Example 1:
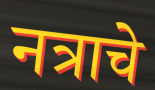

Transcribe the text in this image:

नत्राचे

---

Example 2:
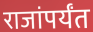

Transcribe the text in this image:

राजांपर्यंत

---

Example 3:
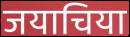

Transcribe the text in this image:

जयाचिया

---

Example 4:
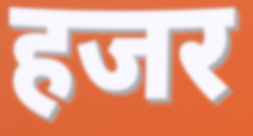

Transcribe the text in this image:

हजर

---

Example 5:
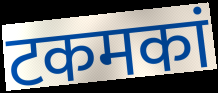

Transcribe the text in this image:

टकमकां